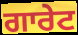
ਗਾਰੇਟ